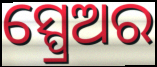
ସ୍ପ୍ରେଅର